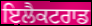
ਇਲੈਕਟਰਾਡ